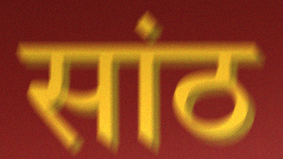
सांठ